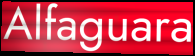
Alfaguara